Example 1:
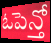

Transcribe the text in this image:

ఓపెన్తో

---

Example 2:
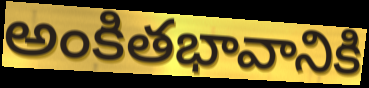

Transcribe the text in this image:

అంకితభావానికి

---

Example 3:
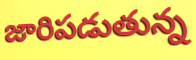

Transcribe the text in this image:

జారిపడుతున్న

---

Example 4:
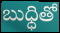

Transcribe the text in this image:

బుధ్ధితో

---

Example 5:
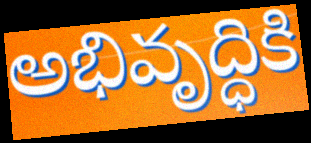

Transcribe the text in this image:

అభివృద్ధికి